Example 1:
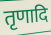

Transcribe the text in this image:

तृणादि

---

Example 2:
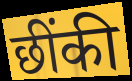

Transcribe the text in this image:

छींकी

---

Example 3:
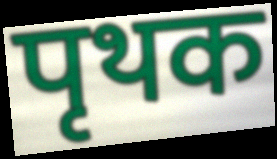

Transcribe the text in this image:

पृथक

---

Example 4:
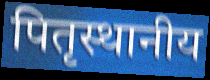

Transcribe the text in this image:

पितृस्थानीय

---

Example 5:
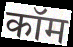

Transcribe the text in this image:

कॉम